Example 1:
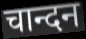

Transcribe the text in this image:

चान्दन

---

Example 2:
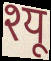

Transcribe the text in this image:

श्यू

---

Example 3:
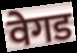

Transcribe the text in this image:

वेगड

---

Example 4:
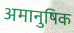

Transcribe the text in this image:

अमानुषिक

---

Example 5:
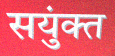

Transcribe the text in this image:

सयुंक्त